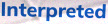
Interpreted